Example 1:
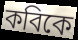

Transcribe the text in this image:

কবিকে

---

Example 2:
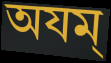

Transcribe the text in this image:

অযম্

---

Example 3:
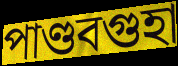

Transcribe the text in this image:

পাণ্ডবগুহা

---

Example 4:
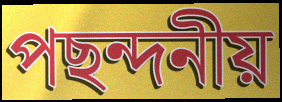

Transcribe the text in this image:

পছন্দনীয়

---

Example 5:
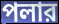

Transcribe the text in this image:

পলার